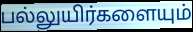
பல்லுயிர்களையும்